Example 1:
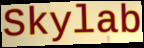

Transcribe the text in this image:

Skylab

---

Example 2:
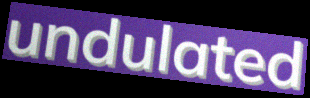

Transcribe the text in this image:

undulated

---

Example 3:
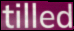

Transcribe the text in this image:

tilled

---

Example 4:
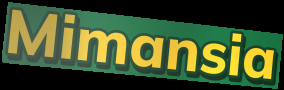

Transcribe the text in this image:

Mimansia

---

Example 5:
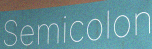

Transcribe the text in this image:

Semicolon